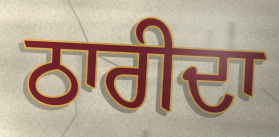
ਠਾਰੀਦਾ